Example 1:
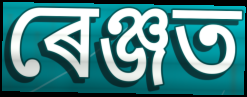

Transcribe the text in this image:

ৰেঞ্জত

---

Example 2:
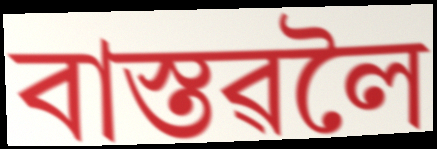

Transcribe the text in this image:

বাস্তৱলৈ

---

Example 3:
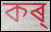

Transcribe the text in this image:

কৰ্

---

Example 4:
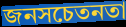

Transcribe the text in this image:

জনসচেতনতা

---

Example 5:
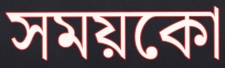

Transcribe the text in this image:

সময়কো